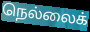
நெல்லைக்